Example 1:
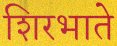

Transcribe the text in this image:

शिरभाते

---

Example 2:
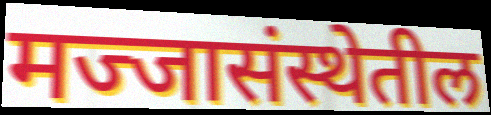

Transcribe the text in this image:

मज्जासंस्थेतील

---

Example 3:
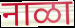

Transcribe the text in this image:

नाळा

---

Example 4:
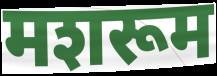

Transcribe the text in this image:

मशरूम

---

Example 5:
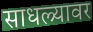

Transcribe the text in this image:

साधल्यावर